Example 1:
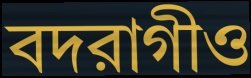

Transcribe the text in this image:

বদরাগীও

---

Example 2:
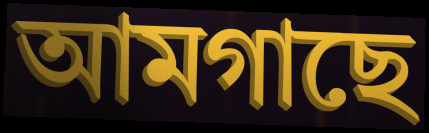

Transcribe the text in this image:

আমগাছে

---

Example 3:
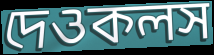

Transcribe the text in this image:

দেওকলস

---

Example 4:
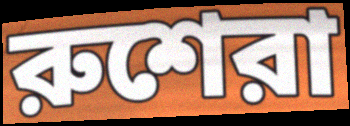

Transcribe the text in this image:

রুশেরা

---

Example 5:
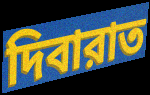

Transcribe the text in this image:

দিবারাত